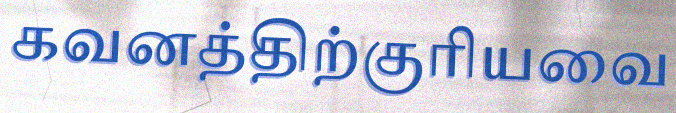
கவனத்திற்குரியவை